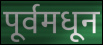
पूर्वमधून